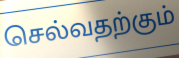
செல்வதற்கும்